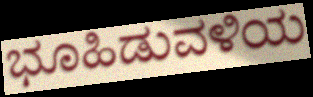
ಭೂಹಿಡುವಳಿಯ